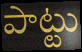
పాట్టు